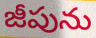
జీపును